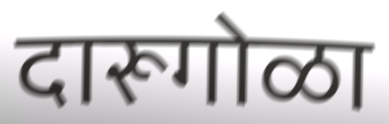
दारूगोळा